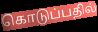
கொடுப்பதில்